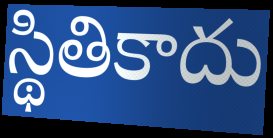
స్థితికాదు